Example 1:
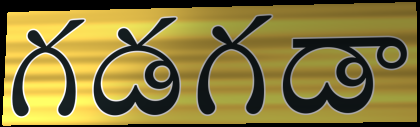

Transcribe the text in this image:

గడగడా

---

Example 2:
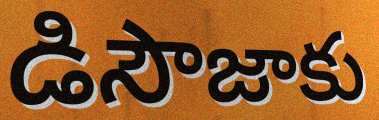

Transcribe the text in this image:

డిసౌజాకు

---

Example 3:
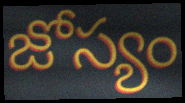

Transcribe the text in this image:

జోస్యం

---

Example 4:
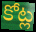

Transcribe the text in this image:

కోట్ల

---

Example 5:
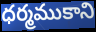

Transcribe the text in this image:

ధర్మముకాని